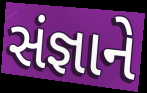
સંજ્ઞાને